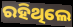
ରହିଥିଲେ